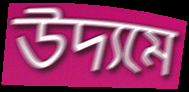
উদ্যমে